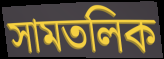
সামতলিক